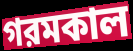
গরমকাল